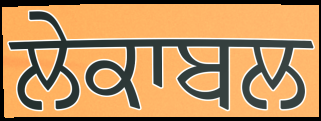
ਲੇਕਾਬਲ